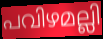
പവിഴമല്ലി